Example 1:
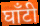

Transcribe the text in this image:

घाँटी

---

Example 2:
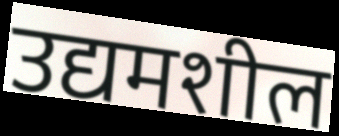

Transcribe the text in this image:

उद्यमशील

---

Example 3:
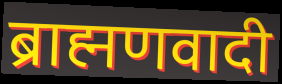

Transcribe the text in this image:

ब्राह्मणवादी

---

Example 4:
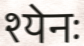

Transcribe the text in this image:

श्येनः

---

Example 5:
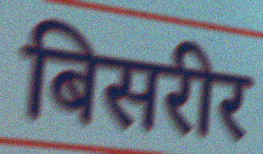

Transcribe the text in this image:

बिसरीर